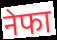
नेफा